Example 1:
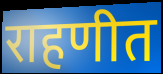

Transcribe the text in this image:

राहणीत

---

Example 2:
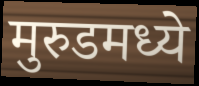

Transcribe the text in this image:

मुरुडमध्ये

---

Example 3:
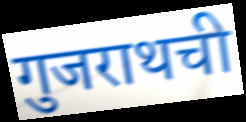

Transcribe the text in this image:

गुजराथची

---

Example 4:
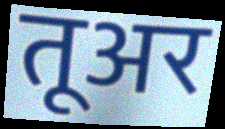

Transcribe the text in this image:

तूअर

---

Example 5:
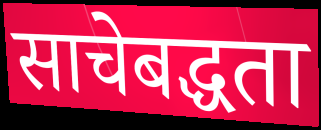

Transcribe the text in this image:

साचेबद्धता